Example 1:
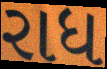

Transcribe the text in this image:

રાધ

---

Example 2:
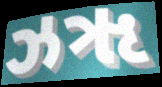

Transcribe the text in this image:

ઝૠ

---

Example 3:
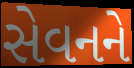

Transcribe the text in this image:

સેવનને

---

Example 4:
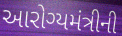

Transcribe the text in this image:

આરોગ્યમંત્રીની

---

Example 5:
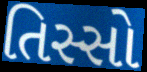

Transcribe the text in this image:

તિસ્સો